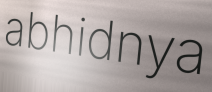
abhidnya